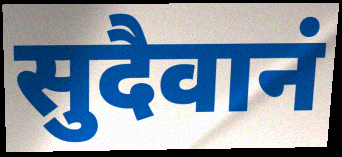
सुदैवानं